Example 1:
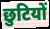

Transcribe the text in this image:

छुटियों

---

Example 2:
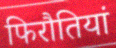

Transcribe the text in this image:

फिरौतियां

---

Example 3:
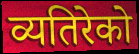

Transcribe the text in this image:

व्यतिरेको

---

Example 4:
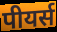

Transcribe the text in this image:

पीयर्स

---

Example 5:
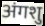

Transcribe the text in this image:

अंगशु